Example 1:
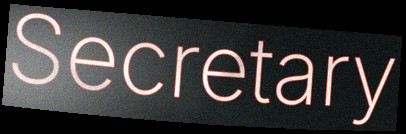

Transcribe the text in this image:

Secretary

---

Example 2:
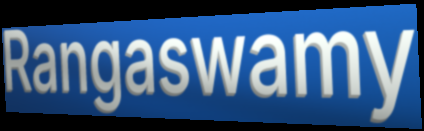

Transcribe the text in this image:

Rangaswamy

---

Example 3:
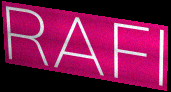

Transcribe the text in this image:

RAFI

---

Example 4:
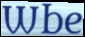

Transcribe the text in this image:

Wbe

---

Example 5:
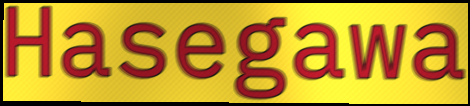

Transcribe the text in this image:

Hasegawa